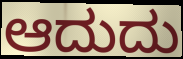
ಆದುದು